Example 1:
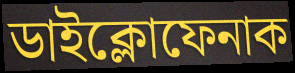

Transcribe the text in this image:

ডাইক্লোফেনাক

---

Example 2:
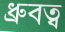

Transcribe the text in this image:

ধ্রুবত্ব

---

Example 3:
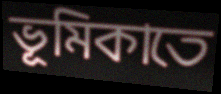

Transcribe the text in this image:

ভূমিকাতে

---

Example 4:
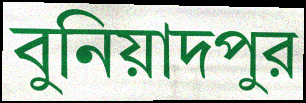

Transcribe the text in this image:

বুনিয়াদপুর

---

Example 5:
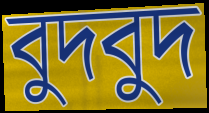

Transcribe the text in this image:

বুদবুদ